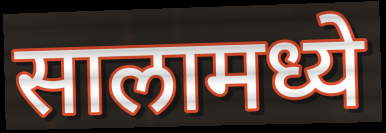
सालामध्ये